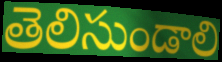
తెలిసుండాలి